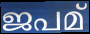
ജപമ്